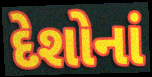
દેશોનાં